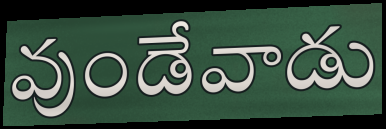
వుండేవాడు